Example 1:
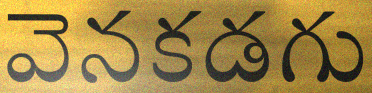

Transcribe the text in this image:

వెనకడగు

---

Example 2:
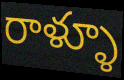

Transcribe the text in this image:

రాళ్ళూ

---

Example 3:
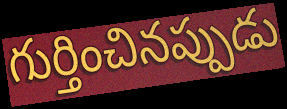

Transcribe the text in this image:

గుర్తించినప్పుడు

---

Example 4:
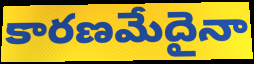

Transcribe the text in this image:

కారణమేదైనా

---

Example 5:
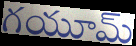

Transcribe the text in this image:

గయూమ్